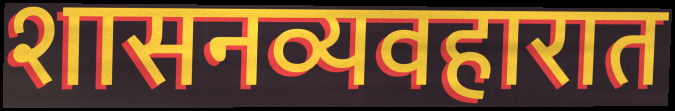
शासनव्यवहारात